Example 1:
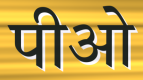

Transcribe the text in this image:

पीओ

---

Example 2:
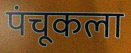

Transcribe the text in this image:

पंचूकला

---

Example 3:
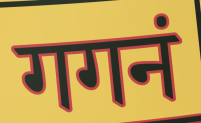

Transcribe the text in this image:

गगनं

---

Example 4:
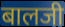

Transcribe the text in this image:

बालजी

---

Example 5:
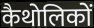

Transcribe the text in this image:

कैथोलिकों